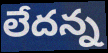
లేదన్న